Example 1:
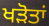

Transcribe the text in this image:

ਖੜੋਤਾਂ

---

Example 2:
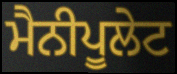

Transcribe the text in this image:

ਮੈਨੀਪੂਲੇਟ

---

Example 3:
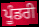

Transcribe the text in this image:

ਪੂੰਡਰੀ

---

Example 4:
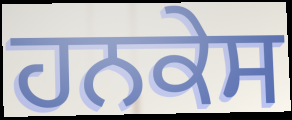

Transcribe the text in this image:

ਹਨਕੇਸ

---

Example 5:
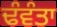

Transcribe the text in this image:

ਢੰਵੰਤਾ